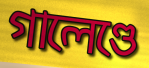
গালেণ্ডে